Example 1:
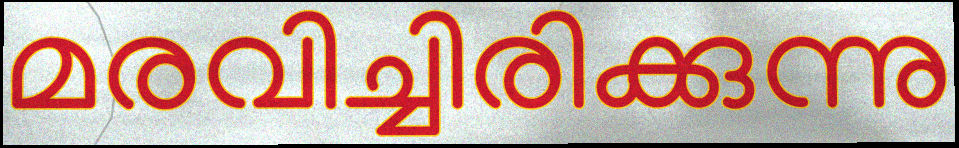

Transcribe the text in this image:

മരവിച്ചിരിക്കുന്നു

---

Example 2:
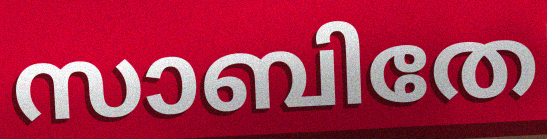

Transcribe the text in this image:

സാബിതേ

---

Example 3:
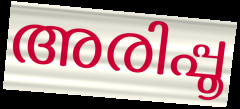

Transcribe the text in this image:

അരിപ്പൂ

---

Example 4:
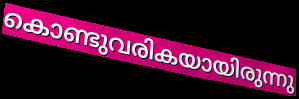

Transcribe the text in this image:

കൊണ്ടുവരികയായിരുന്നു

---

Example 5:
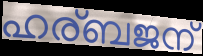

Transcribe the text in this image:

ഹര്ബജന്